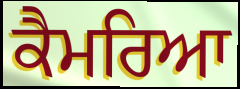
ਕੈਮਰਿਆ